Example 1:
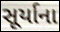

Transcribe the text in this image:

સૂર્યાના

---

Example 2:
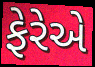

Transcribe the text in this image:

ફેરેએ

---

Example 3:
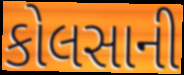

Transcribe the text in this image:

કોલસાની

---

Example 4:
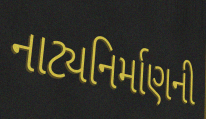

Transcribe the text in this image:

નાટ્યનિર્માણની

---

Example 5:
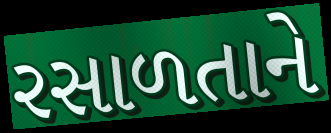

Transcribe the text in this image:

રસાળતાને